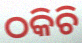
ଠକିଚି